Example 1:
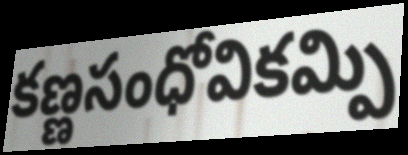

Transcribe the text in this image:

కణ్ణసంధోవికమ్పి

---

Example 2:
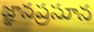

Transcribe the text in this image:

జ్ఞానప్రసూన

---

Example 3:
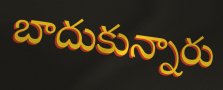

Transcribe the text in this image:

బాదుకున్నారు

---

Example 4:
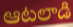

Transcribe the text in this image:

ఆటలాడి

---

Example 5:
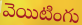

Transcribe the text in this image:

వెయిటింగు